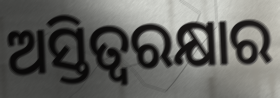
ଅସ୍ତିତ୍ୱରକ୍ଷାର